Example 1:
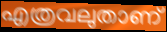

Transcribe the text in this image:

എത്രവലുതാണ്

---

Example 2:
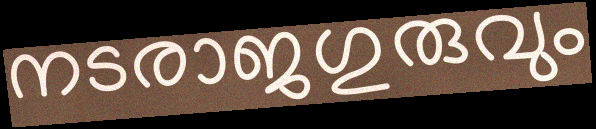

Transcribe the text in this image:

നടരാജഗുരുവും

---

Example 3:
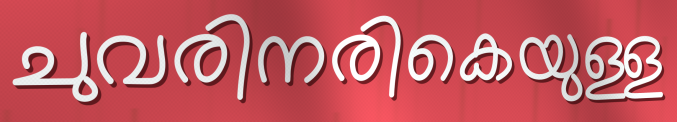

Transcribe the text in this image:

ചുവരിനരികെയുള്ള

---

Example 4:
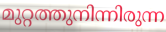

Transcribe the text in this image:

മുറ്റത്തുനിന്നിരുന്ന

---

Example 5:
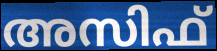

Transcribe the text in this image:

അസിഫ്